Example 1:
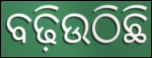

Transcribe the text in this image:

ବଢ଼ିଉଠିଛି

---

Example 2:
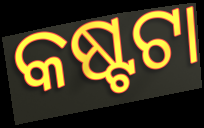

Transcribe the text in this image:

କଷ୍ଟଟା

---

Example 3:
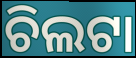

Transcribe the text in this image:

ଚିଲଟା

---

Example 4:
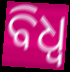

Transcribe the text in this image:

ବିଧ୍ଵ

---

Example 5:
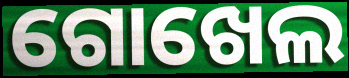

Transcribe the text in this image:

ଗୋଖେଲ